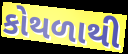
કોથળાથી